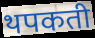
थपकती